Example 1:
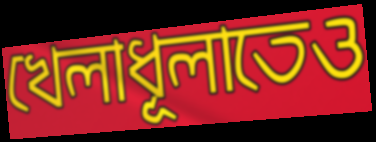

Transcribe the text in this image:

খেলাধূলাতেও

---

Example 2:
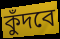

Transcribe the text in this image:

কুঁদবে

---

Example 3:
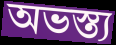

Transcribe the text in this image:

অভস্ত্য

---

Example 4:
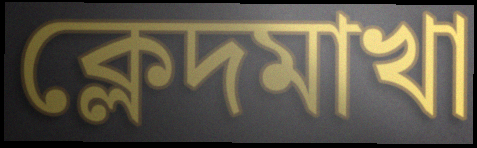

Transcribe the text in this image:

ক্লেদমাখা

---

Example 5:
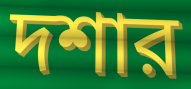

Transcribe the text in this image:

দশার